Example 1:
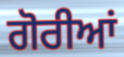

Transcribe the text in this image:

ਗੋਰੀਆਂ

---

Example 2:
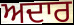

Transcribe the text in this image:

ਅਦਾਰ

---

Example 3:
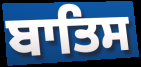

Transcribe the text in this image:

ਬਾਤਿਸ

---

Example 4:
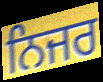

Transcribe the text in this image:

ਨਿਜਰ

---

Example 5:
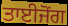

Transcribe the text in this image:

ਤਾਈਜੋਂਗ